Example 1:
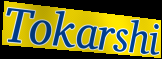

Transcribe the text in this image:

Tokarshi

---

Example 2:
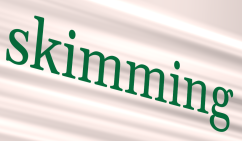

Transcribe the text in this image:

skimming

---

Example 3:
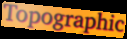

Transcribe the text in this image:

Topographic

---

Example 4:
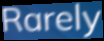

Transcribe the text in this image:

Rarely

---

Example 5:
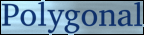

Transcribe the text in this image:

Polygonal